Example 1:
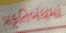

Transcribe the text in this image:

પ્રકૃતિબંધમાં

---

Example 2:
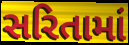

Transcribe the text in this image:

સરિતામાં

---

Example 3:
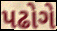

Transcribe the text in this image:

પઢોગે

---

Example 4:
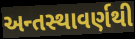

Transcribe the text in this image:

અન્તસ્થાવર્ણથી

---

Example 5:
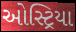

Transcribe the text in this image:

ઓસ્ટ્રિયા